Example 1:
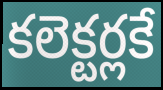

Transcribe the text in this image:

కలెక్టర్లకే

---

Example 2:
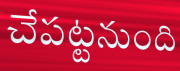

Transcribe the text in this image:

చేపట్టనుంది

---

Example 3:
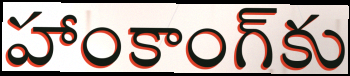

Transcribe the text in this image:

హాంకాంగ్‌కు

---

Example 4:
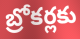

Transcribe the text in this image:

బ్రోకర్లకు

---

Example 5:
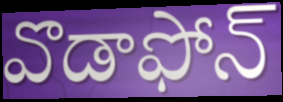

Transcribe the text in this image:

వొడాఫోన్